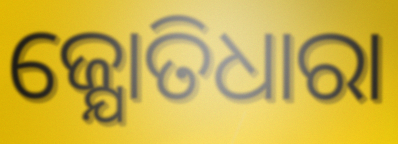
ଜ୍ଯୋତିଧାରା